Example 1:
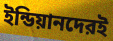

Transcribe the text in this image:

ইন্ডিয়ানদেরই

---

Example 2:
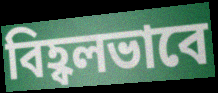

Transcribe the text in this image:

বিহ্বলভাবে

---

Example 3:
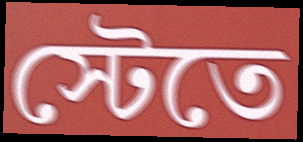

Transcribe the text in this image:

স্টেতে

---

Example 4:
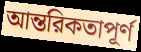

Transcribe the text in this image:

আন্তরিকতাপূর্ণ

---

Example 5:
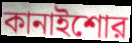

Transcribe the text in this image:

কানাইশোর